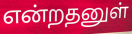
என்றதனுள்